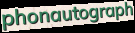
phonautograph